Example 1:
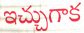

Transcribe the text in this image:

ఇచ్చుగాక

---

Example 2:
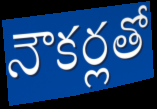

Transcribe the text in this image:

నౌకర్లతో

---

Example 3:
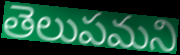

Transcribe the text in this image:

తెలుపమని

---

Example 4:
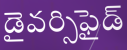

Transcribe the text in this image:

డైవర్సిఫైడ్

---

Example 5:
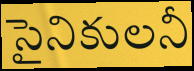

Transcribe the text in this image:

సైనికులనీ